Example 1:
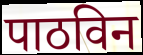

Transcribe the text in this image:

पाठविन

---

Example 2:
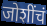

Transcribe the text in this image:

जोशींचं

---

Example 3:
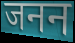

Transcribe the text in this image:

जनन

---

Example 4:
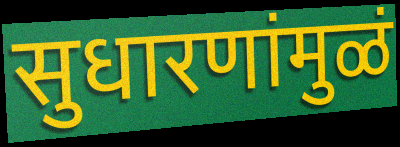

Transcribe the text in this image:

सुधारणांमुळं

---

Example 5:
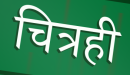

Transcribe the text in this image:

चित्रही